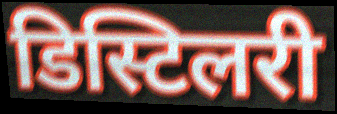
डिस्टिलरी